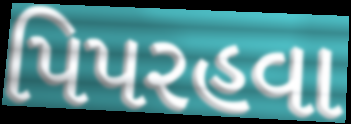
પિપરહવા